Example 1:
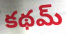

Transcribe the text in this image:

కథమ్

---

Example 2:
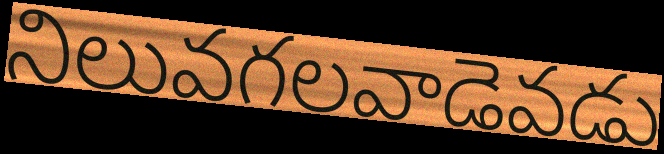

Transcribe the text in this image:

నిలువగలవాడెవడు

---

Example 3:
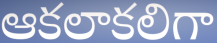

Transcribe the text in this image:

ఆకలాకలిగా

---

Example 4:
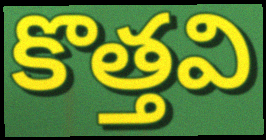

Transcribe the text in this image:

కొత్తవి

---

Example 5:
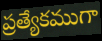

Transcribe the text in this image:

ప్రత్యేకముగా